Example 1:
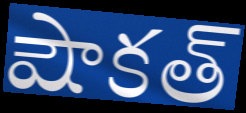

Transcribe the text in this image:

షౌకత్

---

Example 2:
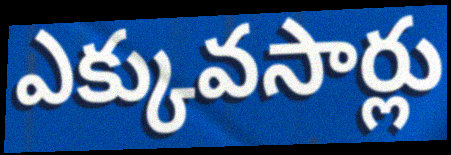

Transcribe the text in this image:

ఎక్కువసార్లు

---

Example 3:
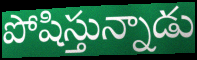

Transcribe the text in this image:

పోషిస్తున్నాడు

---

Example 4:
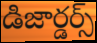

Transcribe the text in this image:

డిజార్డర్స్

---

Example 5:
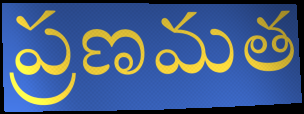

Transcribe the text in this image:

ప్రణమత